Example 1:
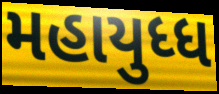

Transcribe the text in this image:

મહાયુધ્ધ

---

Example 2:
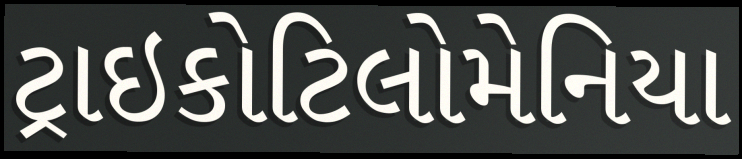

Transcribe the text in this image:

ટ્રાઇકોટિલોમેનિયા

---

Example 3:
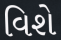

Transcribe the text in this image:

વિશે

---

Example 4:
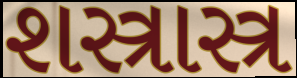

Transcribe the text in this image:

શસ્ત્રાસ્ત્ર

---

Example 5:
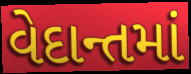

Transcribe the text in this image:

વેદાન્તમાં